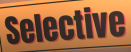
Selective